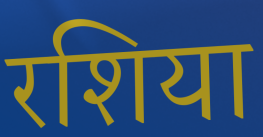
रशिया